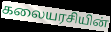
கலையரசியின்